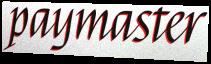
paymaster